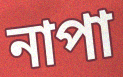
নাপা